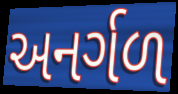
અનર્ગળ